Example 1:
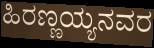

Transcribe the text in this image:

ಹಿರಣ್ಣಯ್ಯನವರ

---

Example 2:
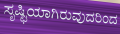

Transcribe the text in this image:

ಸೃಷ್ಟಿಯಾಗಿರುವುದರಿಂದ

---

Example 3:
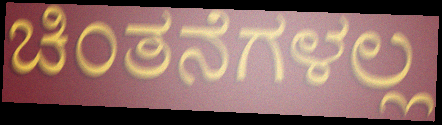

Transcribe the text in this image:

ಚಿಂತನೆಗಳಲ್ಲ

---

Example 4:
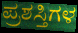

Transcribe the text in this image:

ಪ್ರಶಸ್ತಿಗಳ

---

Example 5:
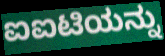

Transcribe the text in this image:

ಐಐಟಿಯನ್ನು